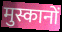
मुस्कानों